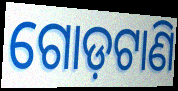
ଗୋଡ଼ଟାଣି